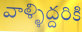
వాళ్ళిద్దరికి